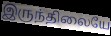
இருந்திலையே